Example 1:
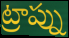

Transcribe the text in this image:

ట్రాప్ను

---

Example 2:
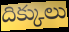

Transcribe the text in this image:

దిక్కులు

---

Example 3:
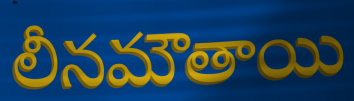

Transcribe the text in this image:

లీనమౌతాయి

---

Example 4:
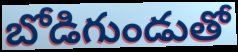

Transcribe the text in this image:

బోడిగుండుతో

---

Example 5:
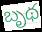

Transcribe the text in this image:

బృథ